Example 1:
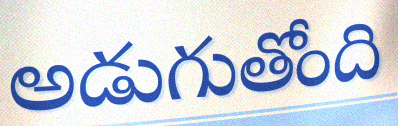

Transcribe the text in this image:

అడుగుతోంది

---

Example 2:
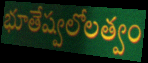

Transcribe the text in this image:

భూతేష్వలోలత్వం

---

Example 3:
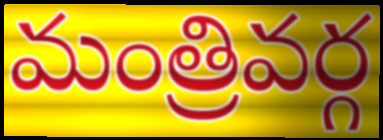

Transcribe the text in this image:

మంత్రివర్గ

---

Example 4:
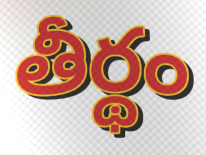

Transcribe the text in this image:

తీర్థం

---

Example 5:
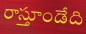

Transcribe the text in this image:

రాస్తూండేది